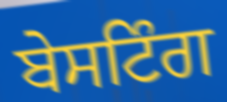
ਬੇਸਟਿੰਗ